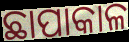
ଛାପାକାଳ